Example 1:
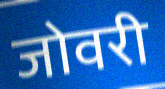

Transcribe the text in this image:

जोवरी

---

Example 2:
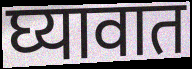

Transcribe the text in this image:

घ्यावात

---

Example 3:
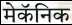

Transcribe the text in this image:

मेकॅनिक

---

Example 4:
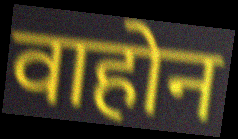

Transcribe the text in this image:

वाहोन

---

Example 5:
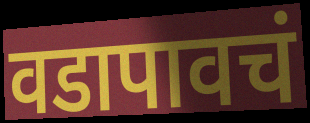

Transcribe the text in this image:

वडापावचं